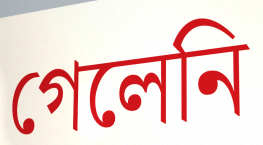
গেলেনি